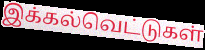
இக்கல்வெட்டுகள்